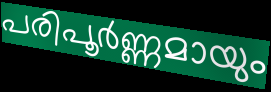
പരിപൂർണ്ണമായും